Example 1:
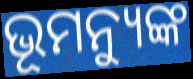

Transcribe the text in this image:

ଭୂମନ୍ୟୁଙ୍କ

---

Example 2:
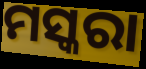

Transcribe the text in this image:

ମସ୍କରା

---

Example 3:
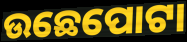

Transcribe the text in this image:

ଉଛେପୋଟା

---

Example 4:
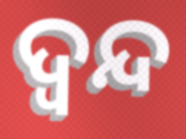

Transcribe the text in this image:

ଦ୍ବନ୍ଦ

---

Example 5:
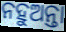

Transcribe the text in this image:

ନହୁଅନ୍ତା